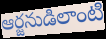
ఆర్జనుడిలాంటి